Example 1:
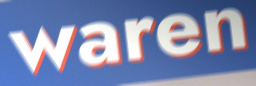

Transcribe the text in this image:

waren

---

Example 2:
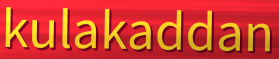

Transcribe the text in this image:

kulakaddan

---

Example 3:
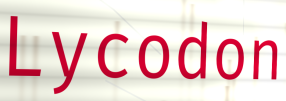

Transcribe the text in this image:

Lycodon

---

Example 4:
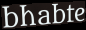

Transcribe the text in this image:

bhabte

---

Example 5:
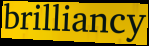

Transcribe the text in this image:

brilliancy